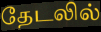
தேடலில்